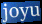
joyu